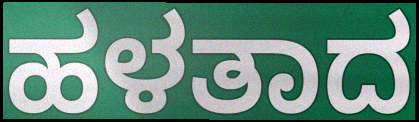
ಹಳತಾದ